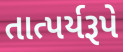
તાત્પર્યરૂપે